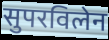
सुपरविलेन